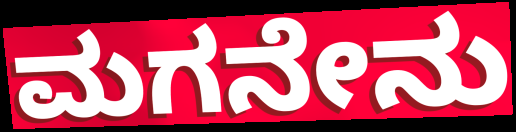
ಮಗನೇನು